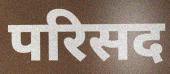
परिसद